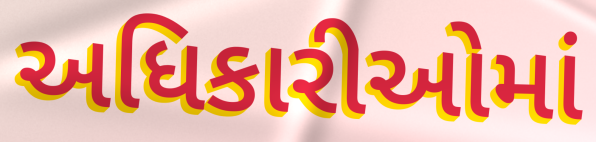
અધિકારીઓમાં